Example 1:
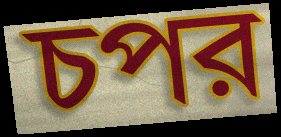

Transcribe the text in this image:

চপর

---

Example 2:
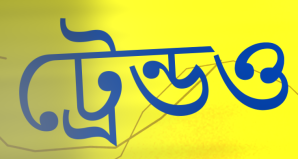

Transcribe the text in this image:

ট্রেন্ডও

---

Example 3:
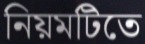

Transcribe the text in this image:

নিয়মটিতে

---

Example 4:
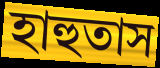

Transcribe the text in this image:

হাহুতাস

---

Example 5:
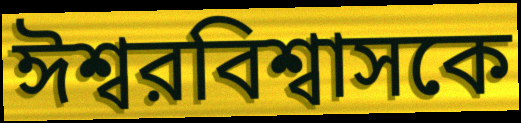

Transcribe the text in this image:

ঈশ্বরবিশ্বাসকে